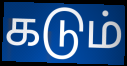
கடும்